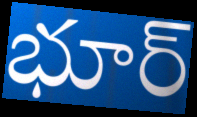
భూర్